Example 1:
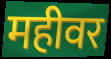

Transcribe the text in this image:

महीवर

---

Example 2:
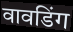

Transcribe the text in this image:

वावडिंग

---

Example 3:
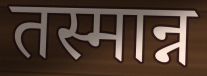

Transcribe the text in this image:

तस्मान्न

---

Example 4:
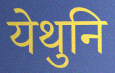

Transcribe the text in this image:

येथुनि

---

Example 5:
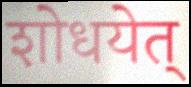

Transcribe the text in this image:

शोधयेत्